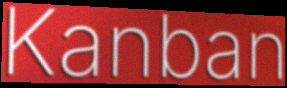
Kanban